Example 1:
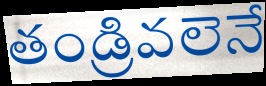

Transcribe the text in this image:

తండ్రివలెనే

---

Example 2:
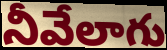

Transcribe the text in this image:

నీవేలాగు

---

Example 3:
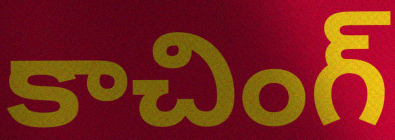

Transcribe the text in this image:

కాచింగ్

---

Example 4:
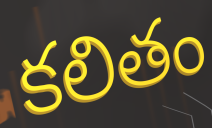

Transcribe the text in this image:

కలితం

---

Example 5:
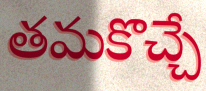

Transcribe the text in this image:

తమకొచ్చే